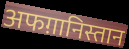
अफग़ानिस्तान